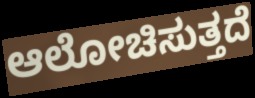
ಆಲೋಚಿಸುತ್ತದೆ